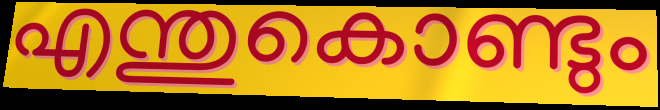
എന്തുകൊണ്ടും